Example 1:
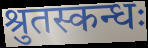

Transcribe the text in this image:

श्रुतस्कन्धः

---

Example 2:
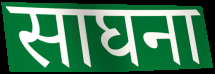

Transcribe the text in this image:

साघना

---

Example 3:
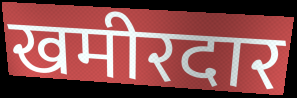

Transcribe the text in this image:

खमीरदार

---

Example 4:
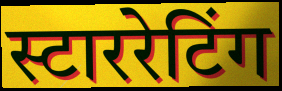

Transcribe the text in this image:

स्टाररेटिंग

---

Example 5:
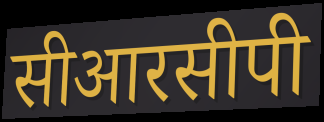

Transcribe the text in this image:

सीआरसीपी